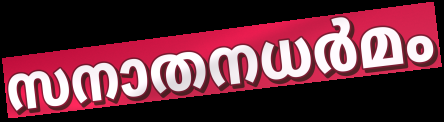
സനാതനധർമം